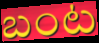
బంట